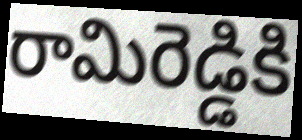
రామిరెడ్డికి